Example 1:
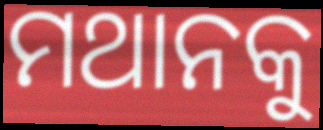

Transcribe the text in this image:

ମଥାନକୁ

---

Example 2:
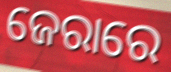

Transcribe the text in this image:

ଜେରାରେ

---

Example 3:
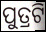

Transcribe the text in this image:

ପୁତ୍ରଟି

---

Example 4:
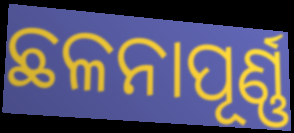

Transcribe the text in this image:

ଛଳନାପୂର୍ଣ୍ଣ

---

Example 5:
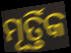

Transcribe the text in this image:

ମୂର୍ତ୍ତିକ